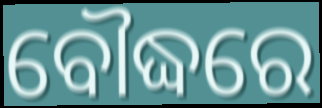
ବୌଦ୍ଧରେ